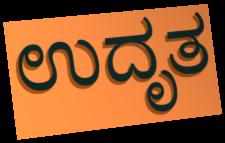
ಉದೃತ